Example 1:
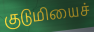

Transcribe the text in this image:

குடுமியைச்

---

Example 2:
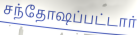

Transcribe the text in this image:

சந்தோஷப்பட்டார்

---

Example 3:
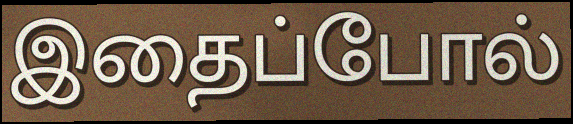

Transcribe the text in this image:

இதைப்போல்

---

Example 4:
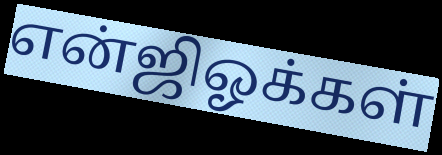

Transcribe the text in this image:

என்ஜிஓக்கள்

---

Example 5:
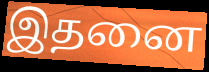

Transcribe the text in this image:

இதனை